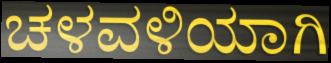
ಚಳವಳಿಯಾಗಿ